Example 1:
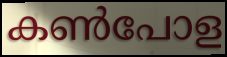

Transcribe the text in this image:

കൺപോള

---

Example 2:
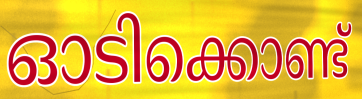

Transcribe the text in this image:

ഓടിക്കൊണ്ട്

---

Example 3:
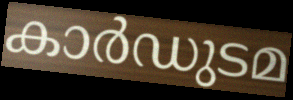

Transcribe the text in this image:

കാർഡുടമ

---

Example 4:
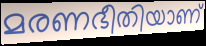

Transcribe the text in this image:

മരണഭീതിയാണ്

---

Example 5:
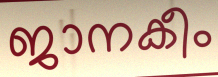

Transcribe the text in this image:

ജാനകീം